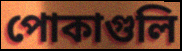
পোকাগুলি